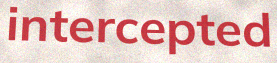
intercepted